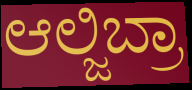
ಆಲ್ಜಿಬ್ರಾ